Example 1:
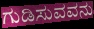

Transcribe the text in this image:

ಗುಡಿಸುವವನು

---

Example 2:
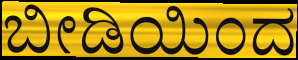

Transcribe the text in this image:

ಬೀಡಿಯಿಂದ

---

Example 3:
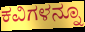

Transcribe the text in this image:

ಕವಿಗಳನ್ನೂ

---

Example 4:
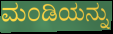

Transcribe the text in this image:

ಮಂಡಿಯನ್ನು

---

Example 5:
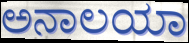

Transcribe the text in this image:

ಅನಾಲಯಾ